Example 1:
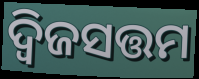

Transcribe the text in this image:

ଦ୍ୱିଜସତ୍ତମ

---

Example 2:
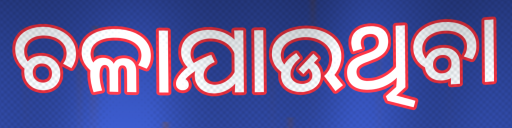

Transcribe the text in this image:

ଚଳାଯାଉଥିବା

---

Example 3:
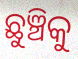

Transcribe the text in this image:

ଛୁଞ୍ଚିକୁ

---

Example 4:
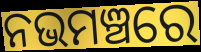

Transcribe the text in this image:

ନଭମଞ୍ଚରେ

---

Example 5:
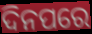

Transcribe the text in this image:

ଦିନପରେ